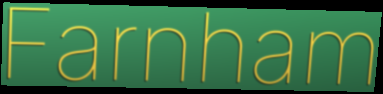
Farnham